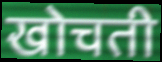
खोचती